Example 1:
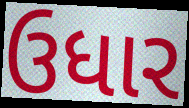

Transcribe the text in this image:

ઉધાર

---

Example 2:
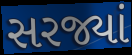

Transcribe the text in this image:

સરજ્યાં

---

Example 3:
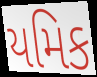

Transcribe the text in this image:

યમિક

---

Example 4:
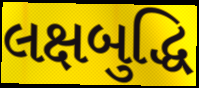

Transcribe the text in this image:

લક્ષબુદ્ધિ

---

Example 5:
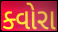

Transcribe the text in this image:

ક્વોરા